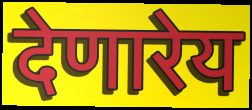
देणारेय